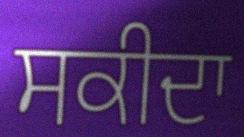
ਸਕੀਦਾ